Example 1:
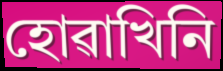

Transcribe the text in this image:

হোৱাখিনি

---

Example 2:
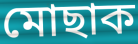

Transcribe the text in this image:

মোছাক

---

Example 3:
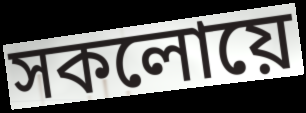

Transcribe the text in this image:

সকলোয়ে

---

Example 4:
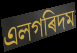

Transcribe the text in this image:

এলগৰিদম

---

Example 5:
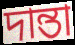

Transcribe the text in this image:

দান্তা